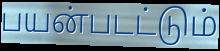
பயன்படட்டும்